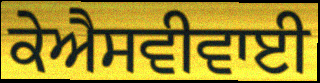
ਕੇਐਸਵੀਵਾਈ